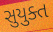
સુયુક્ત